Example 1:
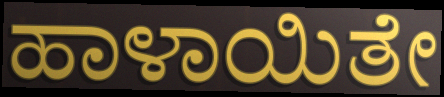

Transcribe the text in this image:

ಹಾಳಾಯಿತೇ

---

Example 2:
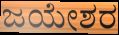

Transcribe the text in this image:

ಜಯೇಶರ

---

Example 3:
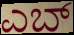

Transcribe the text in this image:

ಎಬ್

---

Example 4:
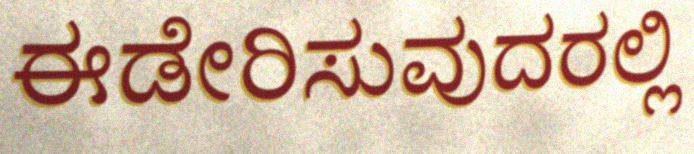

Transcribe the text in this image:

ಈಡೇರಿಸುವುದರಲ್ಲಿ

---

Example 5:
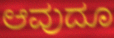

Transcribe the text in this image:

ಆವುದೂ